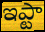
ఇప్టా